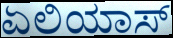
ಏಲಿಯಾಸ್